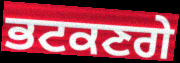
ਭਟਕਣਗੇ